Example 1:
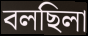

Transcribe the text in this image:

বলছিলা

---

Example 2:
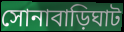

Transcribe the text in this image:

সোনাবাড়িঘাট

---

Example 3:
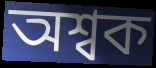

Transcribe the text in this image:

অশ্বক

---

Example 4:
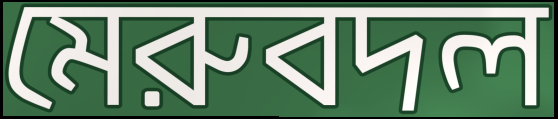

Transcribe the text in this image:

মেরুবদল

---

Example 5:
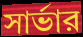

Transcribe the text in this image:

সার্ভার